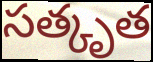
సత్కృత